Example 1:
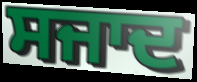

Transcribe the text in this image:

ਸਜਾਦ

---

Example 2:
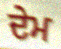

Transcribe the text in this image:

ਦੇਮ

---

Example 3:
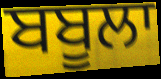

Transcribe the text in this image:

ਬਬੂਲਾ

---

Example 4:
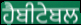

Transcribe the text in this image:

ਹੈਬੀਟੇਬਲ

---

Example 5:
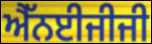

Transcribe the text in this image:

ਐੱਨਈਜੀਜੀ